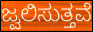
ಜ್ವಲಿಸುತ್ತವೆ